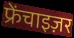
फ्रेंचाइज़र